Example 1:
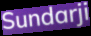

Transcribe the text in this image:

Sundarji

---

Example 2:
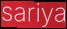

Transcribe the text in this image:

sariya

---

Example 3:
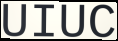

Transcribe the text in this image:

UIUC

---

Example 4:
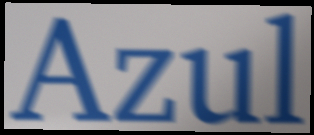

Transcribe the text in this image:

Azul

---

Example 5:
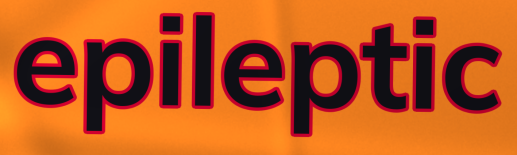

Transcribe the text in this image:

epileptic